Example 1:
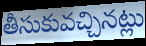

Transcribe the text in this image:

తీసుకువచ్చినట్లు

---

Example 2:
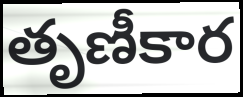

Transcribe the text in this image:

తృణీకార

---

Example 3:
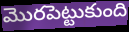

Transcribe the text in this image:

మొరపెట్టుకుంది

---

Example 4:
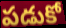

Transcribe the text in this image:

పడుకో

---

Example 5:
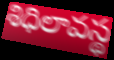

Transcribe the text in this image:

శిధిలావస్థ